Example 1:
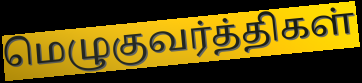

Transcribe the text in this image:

மெழுகுவர்த்திகள்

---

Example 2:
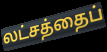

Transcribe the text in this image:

லட்சத்தைப்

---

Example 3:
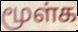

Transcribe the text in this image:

மூள்க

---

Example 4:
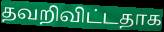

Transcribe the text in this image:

தவறிவிட்டதாக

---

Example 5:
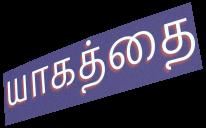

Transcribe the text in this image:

யாகத்தை